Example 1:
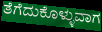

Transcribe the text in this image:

ತೆಗೆದುಕೊಳ್ಳುವಾಗ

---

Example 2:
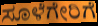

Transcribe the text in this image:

ಸೂಳೆಗೇರಿಗೆ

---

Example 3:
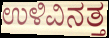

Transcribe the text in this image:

ಉಳಿವಿನತ್ತ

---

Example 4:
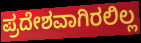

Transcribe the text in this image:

ಪ್ರದೇಶವಾಗಿರಲಿಲ್ಲ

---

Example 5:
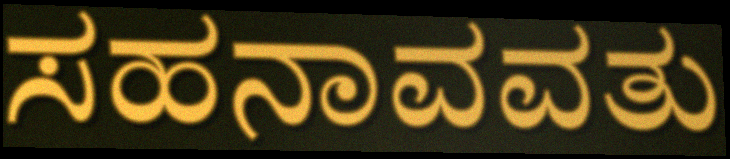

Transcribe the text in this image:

ಸಹನಾವವತು